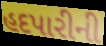
હદપારીની